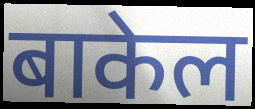
बाकेल